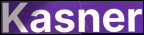
Kasner